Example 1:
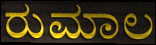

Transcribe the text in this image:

ರುಮಾಲ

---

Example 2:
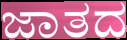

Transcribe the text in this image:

ಜಾತದ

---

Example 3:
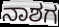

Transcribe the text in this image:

ನಾಶಗ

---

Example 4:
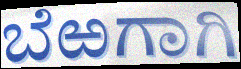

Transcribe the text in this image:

ಬೆಱಗಾಗಿ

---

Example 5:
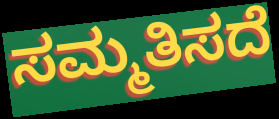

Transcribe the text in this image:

ಸಮ್ಮತಿಸದೆ